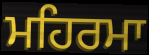
ਮਹਿਰਮਾ